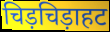
चिड़चिड़ाहट